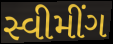
સ્વીમીંગ